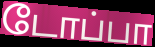
டோப்பா